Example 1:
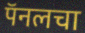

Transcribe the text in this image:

पॅनलचा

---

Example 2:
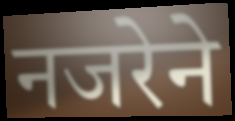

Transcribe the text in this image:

नजरेने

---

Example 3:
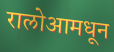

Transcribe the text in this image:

रालोआमधून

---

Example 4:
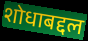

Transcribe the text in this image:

शोधाबद्दल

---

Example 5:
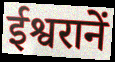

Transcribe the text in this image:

ईश्वरानें